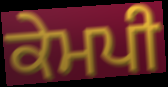
ਕੇਮਪੀ